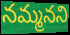
నమ్మనని